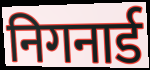
निगनार्ड